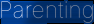
Parenting